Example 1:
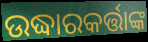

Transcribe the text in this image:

ଉଦ୍ଧାରକର୍ତ୍ତାଙ୍କ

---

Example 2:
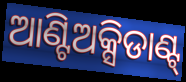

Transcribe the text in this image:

ଆଣ୍ଟିଅକ୍ସିଡାଣ୍ଟ୍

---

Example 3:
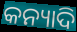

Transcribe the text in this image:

କନ୍ୟାଦି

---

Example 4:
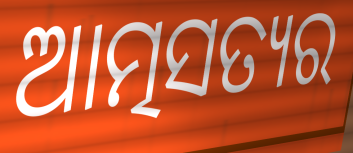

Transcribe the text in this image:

ଆତ୍ମସତ୍ୟର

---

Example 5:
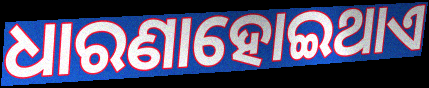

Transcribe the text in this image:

ଧାରଣାହୋଇଥାଏ